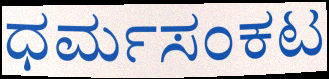
ಧರ್ಮಸಂಕಟ